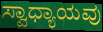
ಸ್ವಾಧ್ಯಾಯವು